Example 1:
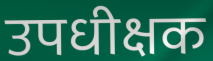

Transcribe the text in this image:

उपधीक्षक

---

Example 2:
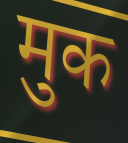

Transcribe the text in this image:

मुक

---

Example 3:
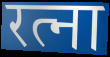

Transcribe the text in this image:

रत्ना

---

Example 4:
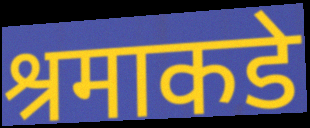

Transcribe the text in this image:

श्रमाकडे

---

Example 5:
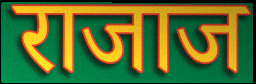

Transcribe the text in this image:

राजाज